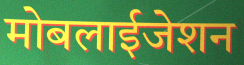
मोबलाईजेशन